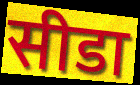
सीडा